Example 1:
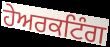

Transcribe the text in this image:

ਹੇਅਰਕਟਿੰਗ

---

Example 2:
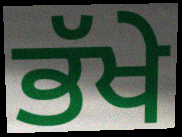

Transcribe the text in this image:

ਭੱਖੇ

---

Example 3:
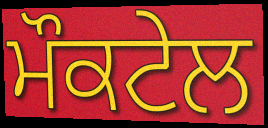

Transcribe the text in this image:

ਮੌਕਟੇਲ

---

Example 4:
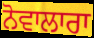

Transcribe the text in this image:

ਨੋਵਾਲਾਰਾ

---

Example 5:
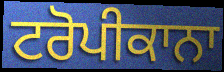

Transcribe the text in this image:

ਟਰੋਪੀਕਾਨਾ